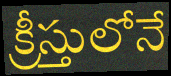
క్రీస్తులోనే